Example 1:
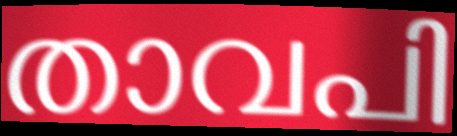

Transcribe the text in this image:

താവപി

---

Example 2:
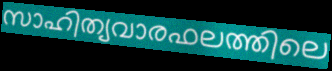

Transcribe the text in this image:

സാഹിത്യവാരഫലത്തിലെ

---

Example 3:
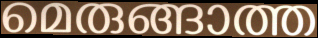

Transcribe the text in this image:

മെരുങ്ങാത്ത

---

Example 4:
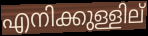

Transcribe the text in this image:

എനിക്കുള്ളില്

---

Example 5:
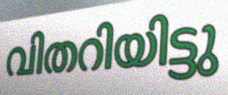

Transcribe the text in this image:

വിതറിയിട്ടു